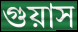
গুয়াস